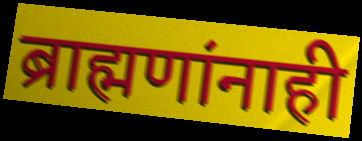
ब्राह्मणांनाही